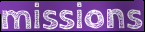
missions